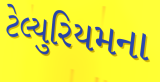
ટેલ્યુરિયમના